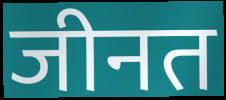
जीनत